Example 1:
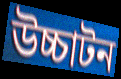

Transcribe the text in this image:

উচ্চাটন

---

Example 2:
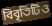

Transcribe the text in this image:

বিবৃতিটিও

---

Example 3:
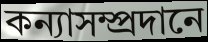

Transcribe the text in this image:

কন্যাসম্প্রদানে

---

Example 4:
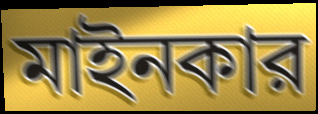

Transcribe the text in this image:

মাইনকার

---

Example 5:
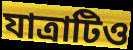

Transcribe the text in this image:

যাত্রাটিও